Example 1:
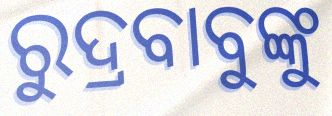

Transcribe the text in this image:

ରୁଦ୍ରବାବୁଙ୍କୁ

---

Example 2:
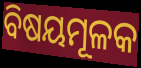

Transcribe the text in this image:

ବିଷୟମୂଳକ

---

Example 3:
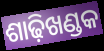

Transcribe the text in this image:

ଶାଢ଼ିଖଣ୍ଡକ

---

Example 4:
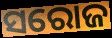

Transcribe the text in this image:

ସରୋଜ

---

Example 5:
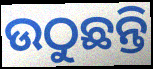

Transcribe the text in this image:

ଉଠୁଛନ୍ତି